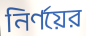
নির্ণয়ের